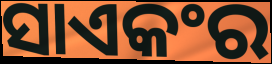
ସାଏକଂର